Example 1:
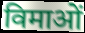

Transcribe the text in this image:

विमाओं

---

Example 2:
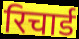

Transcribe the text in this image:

रिचार्ड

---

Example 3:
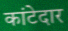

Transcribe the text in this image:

कांटेदार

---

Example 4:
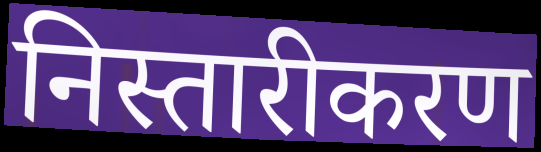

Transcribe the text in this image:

निस्तारीकरण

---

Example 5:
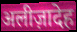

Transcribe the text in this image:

अलीज़ादेह